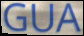
GUA